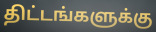
திட்டங்களுக்கு